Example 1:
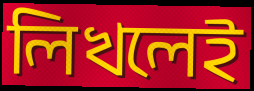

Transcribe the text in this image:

লিখলেই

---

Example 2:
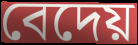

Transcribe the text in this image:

বেদেয়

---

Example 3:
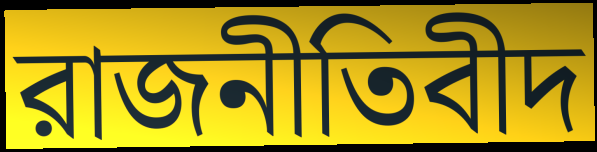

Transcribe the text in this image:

রাজনীতিবীদ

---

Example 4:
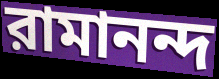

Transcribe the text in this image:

রামানন্দ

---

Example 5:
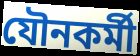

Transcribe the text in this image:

যৌনকর্মী